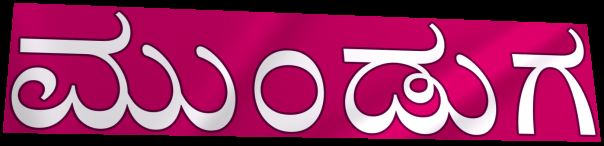
ಮುಂಡುಗ